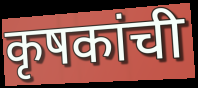
कृषकांची